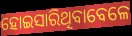
ହୋଇସାରିଥିବାବେଳେ